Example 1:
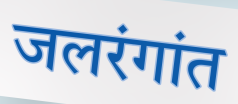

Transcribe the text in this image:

जलरंगांत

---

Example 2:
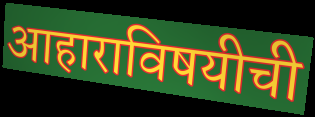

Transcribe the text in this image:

आहाराविषयीची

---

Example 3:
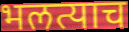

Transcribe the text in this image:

भलत्याच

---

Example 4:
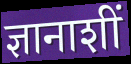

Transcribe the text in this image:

ज्ञानाशीं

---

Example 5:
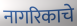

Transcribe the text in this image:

नागरिकाचे